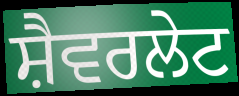
ਸ਼ੈਵਰਲੇਟ